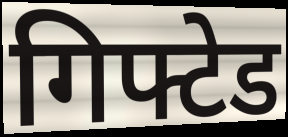
गिफ्टेड